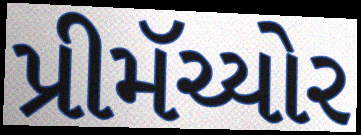
પ્રીમૅચ્યોર